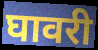
घावरी